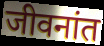
जीवनांत